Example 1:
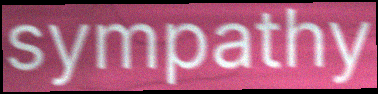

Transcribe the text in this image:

sympathy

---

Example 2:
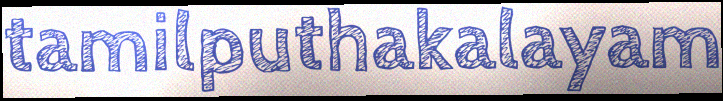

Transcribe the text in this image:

tamilputhakalayam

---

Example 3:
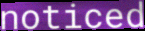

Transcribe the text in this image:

noticed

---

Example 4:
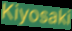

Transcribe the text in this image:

Kiyosaki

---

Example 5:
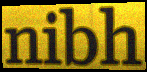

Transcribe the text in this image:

nibh